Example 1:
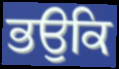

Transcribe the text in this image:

ਭਉਕਿ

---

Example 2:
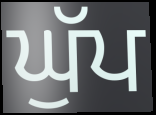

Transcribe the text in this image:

ਘੁੱਪ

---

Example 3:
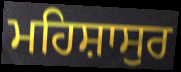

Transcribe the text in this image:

ਮਹਿਸ਼ਾਸੁਰ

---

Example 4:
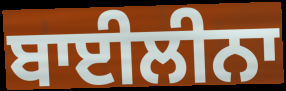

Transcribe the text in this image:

ਬਾਈਲੀਨਾ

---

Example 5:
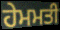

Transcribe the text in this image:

ਹੇਮਮਤੀ